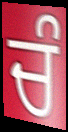
ਚੰ